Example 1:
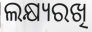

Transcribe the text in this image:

ଲକ୍ଷ୍ୟରଖି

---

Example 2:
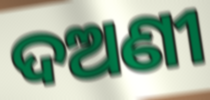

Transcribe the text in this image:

ଦଅଣୀ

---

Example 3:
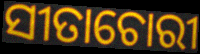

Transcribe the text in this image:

ସୀତାଚୋରୀ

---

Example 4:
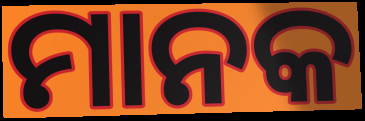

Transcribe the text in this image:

ମାନକ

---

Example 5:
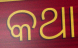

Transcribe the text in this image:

କଥା